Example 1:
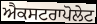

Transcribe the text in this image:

ਐਕਸਟਰਾਪੋਲੇਟ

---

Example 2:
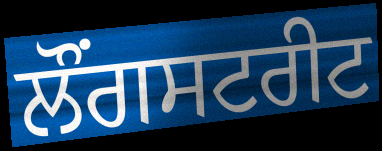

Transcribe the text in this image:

ਲੌਂਗਸਟਰੀਟ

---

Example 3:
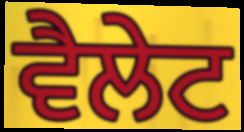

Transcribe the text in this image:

ਵੈਲੇਟ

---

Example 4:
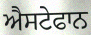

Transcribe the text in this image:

ਐਸਟੇਫਾਨ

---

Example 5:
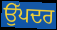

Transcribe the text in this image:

ਉੱਪਦਰ